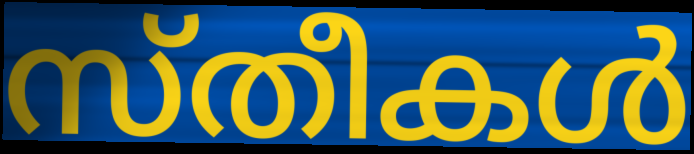
സ്തീകൾ